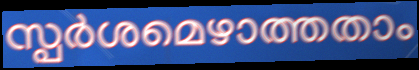
സ്പർശമെഴാത്തതാം